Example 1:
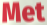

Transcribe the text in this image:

Met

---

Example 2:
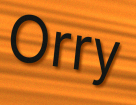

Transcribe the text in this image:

Orry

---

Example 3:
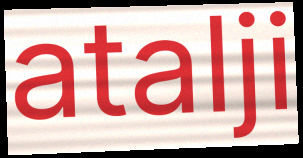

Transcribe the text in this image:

atalji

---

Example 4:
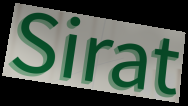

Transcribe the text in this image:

Sirat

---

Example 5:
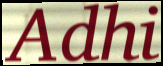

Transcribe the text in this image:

Adhi